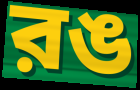
রঙ